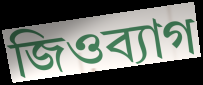
জিওব্যাগ